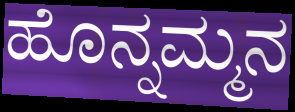
ಹೊನ್ನಮ್ಮನ